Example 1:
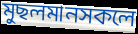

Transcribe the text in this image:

মুছলমানসকলে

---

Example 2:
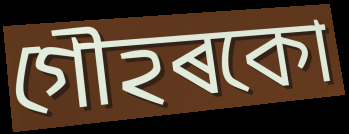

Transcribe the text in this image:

গৌহৰকো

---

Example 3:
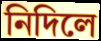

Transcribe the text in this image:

নিদিলে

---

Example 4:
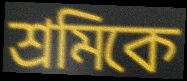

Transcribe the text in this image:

শ্ৰমিকে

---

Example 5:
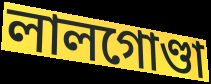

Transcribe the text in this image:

লালগোণ্ডা